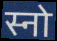
स्नो